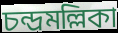
চন্দ্রমল্লিকা